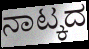
ನಾಟ್ಕದ